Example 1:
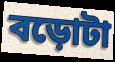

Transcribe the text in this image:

বড়োটা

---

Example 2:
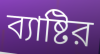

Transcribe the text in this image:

ব্যাষ্টির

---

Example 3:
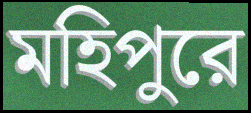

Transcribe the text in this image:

মহিপুরে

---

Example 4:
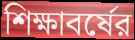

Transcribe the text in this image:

শিক্ষাবর্ষের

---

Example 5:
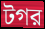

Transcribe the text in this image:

টগর